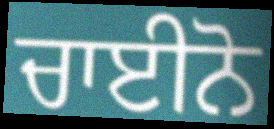
ਚਾਈਨੋ